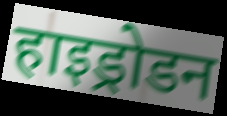
हाइड्रोडन